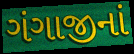
ગંગાજીનાં